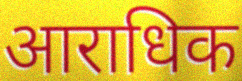
आराधिक